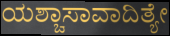
ಯಶ್ಚಾಸಾವಾದಿತ್ಯೇ